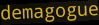
demagogue